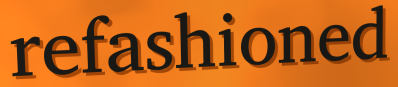
refashioned